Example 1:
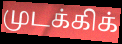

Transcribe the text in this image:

முடக்கிக்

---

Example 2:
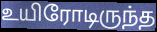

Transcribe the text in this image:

உயிரோடிருந்த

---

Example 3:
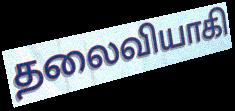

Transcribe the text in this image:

தலைவியாகி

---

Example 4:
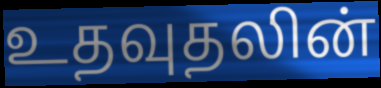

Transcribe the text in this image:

உதவுதலின்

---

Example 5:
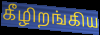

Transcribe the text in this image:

கீழிறங்கிய